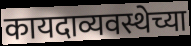
कायदाव्यवस्थेच्या